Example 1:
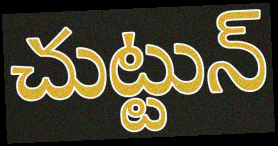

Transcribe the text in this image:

చుట్టున్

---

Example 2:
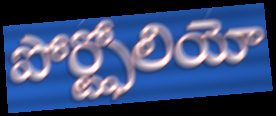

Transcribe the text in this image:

పోర్ట్ఫోలియో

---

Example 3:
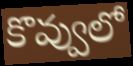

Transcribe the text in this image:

కొవ్వులో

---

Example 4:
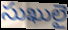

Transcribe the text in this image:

సుఖులై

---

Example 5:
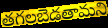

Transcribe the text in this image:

తగలబెడతామని